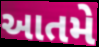
આતમે